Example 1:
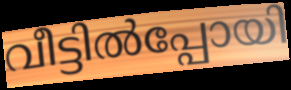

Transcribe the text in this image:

വീട്ടിൽപ്പോയി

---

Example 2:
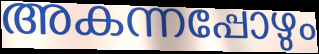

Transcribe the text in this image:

അകന്നപ്പോഴും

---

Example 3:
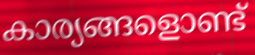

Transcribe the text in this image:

കാര്യങ്ങളൊണ്ട്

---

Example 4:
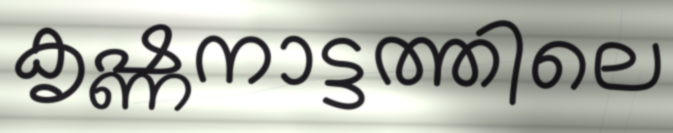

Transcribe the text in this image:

കൃഷ്ണനാട്ടത്തിലെ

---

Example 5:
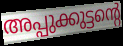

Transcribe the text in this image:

അപ്പുക്കുട്ടന്റെ